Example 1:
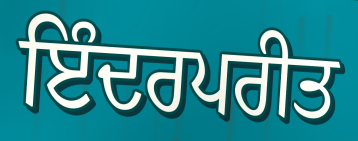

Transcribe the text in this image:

ਇੰਦਰਪਰੀਤ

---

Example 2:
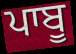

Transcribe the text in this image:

ਪਾਬੂ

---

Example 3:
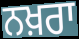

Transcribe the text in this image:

ਨਖ਼ਰਾ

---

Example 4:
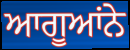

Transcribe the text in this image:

ਆਗੂਆਂਨੇ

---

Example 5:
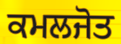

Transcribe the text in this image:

ਕਮਲਜੋਤ